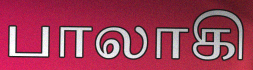
பாலாகி